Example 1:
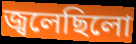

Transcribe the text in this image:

জ্বলেছিলো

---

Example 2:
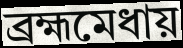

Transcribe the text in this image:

ব্রহ্মমেধায়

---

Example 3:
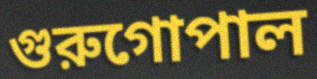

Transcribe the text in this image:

গুরুগোপাল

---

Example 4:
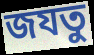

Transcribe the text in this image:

জযতু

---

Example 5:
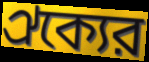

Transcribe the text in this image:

ঐক্যের